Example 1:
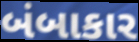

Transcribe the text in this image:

બંબાકાર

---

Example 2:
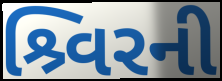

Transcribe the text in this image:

શ્ર્વિરની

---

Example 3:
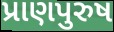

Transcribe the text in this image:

પ્રાણપુરુષ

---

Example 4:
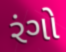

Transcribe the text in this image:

રંગો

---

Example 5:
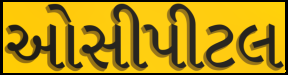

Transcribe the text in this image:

ઓસીપીટલ